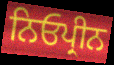
ਨਿਓਪ੍ਰੀਨ